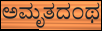
ಅಮೃತದಂಥ